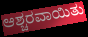
ಆಶ್ಚರವಾಯಿತು